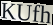
KUfh